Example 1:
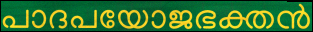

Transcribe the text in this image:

പാദപയോജഭക്തൻ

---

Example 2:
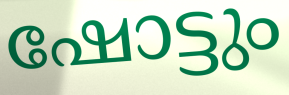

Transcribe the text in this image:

ഷോട്ടും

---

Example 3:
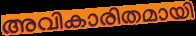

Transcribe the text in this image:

അവികാരിതമായി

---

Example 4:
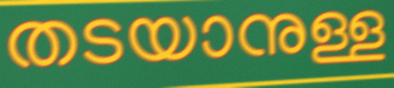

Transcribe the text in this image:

തടയാനുള്ള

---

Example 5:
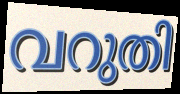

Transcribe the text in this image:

വറുതി